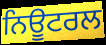
ਨਿਊਟਰਲ